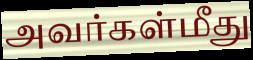
அவர்கள்மீது